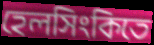
হেলসিংকিতে